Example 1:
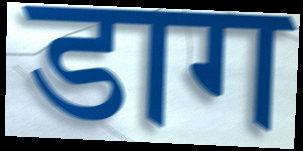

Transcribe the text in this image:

डाग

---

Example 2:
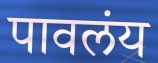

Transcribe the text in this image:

पावलंय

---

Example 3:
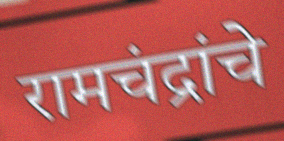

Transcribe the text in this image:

रामचंद्रांचे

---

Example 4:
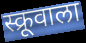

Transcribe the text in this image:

स्क्रूवाला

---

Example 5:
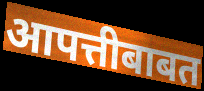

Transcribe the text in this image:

आपत्तीबाबत